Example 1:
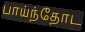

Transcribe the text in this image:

பாய்ந்தோட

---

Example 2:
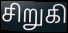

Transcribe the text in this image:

சிறுகி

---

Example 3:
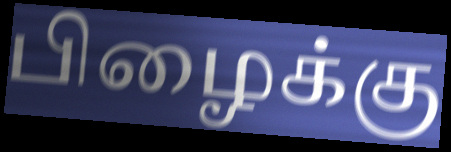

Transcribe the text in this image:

பிழைக்கு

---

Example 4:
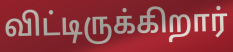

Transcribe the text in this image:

விட்டிருக்கிறார்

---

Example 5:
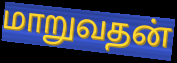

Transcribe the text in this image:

மாறுவதன்